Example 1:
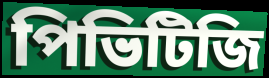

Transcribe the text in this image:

পিভিটিজি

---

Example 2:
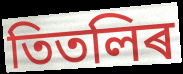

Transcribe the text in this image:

তিতলিৰ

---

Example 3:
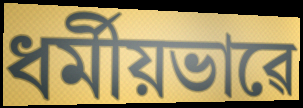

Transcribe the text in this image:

ধৰ্মীয়ভাৱে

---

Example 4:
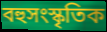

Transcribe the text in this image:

বহুসংস্কৃতিক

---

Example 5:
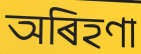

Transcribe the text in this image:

অৰিহণা